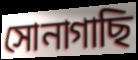
সোনাগাছি